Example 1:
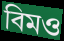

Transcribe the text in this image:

বিমও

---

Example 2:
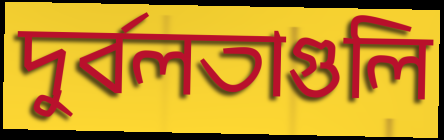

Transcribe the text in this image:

দুর্বলতাগুলি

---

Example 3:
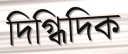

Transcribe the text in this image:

দিগ্ধিদিক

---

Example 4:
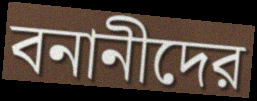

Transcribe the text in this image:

বনানীদের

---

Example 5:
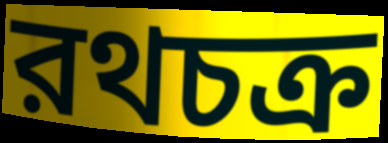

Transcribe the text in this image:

রথচক্র